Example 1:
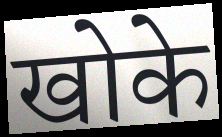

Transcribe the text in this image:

खोके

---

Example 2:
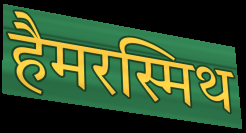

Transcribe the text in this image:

हैमरस्मिथ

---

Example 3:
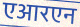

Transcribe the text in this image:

एआरएन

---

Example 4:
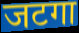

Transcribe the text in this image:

जटगा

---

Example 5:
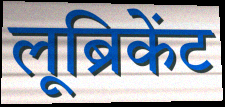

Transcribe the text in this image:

लूब्रिकेंट